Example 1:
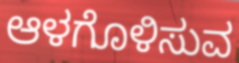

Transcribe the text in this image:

ಆಳಗೊಳಿಸುವ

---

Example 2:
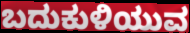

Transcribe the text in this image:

ಬದುಕುಳಿಯುವ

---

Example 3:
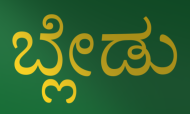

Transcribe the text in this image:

ಬ್ಲೇಡು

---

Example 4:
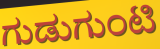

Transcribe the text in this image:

ಗುಡುಗುಂಟಿ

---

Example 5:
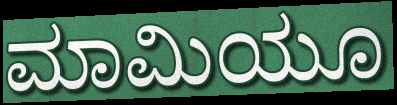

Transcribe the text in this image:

ಮಾಮಿಯೂ